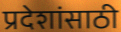
प्रदेशांसाठी